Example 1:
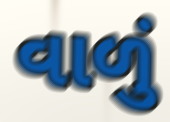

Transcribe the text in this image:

વાળું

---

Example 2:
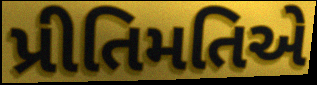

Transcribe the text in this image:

પ્રીતિમતિએ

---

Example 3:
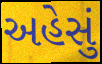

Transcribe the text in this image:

અહેસું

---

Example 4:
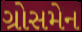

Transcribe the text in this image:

ગ્રોસમેન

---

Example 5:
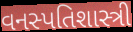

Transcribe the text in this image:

વનસ્પતિશાસ્ત્રી